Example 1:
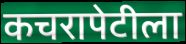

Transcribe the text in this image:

कचरापेटीला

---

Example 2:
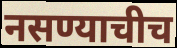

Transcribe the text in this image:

नसण्याचीच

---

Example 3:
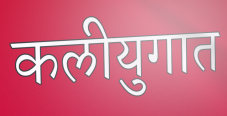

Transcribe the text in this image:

कलीयुगात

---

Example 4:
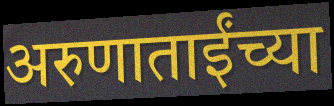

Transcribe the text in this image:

अरुणाताईंच्या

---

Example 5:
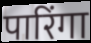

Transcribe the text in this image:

पारिंगा